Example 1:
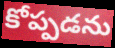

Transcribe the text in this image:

కోప్పడను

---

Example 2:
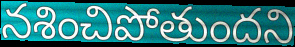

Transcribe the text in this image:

నశించిపోతుందని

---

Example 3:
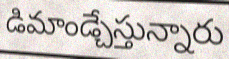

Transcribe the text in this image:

డిమాండ్చేస్తున్నారు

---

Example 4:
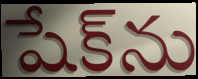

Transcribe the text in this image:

షేక్‌ను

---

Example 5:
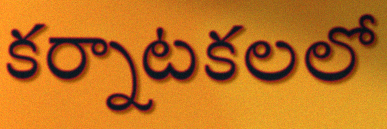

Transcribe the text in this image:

కర్నాటకలలో